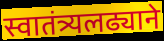
स्वातंत्र्यलढ्याने